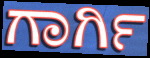
ಗಾರ್ಗಿ